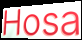
Hosa